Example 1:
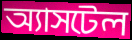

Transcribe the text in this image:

অ্যাসটেল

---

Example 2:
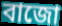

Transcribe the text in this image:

বাজো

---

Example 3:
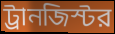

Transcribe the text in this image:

ট্রানজিস্টর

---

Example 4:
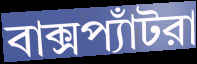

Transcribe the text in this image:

বাক্সপ্যাঁটরা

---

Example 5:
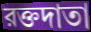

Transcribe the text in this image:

রক্তদাতা